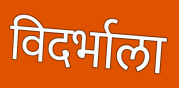
विदर्भाला